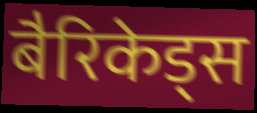
बैरिकेड्स